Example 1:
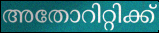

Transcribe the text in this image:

അതോറിറ്റിക്ക്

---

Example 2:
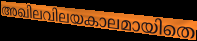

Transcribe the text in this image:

അഖിലവിലയകാലമായിതെ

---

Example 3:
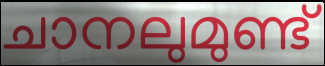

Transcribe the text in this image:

ചാനലുമുണ്ട്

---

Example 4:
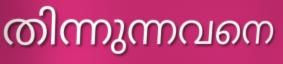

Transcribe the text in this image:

തിന്നുന്നവനെ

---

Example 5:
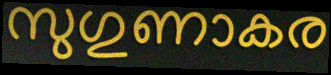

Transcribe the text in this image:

സുഗുണാകര